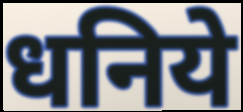
धनिये